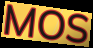
MOS